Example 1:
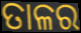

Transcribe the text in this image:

ତାଳର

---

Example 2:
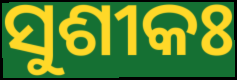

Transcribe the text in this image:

ସୁଶୀକଃ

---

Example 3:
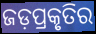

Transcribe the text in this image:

ଜଡ଼ପ୍ରକୃତିର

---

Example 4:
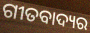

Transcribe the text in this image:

ଗୀତବାଦ୍ୟର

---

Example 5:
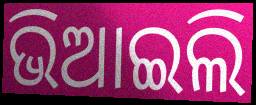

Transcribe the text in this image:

ଭିଆଇଲି